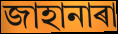
জাহানাৰা